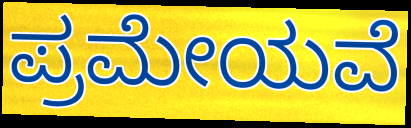
ಪ್ರಮೇಯವೆ